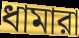
ধামারা